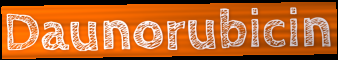
Daunorubicin